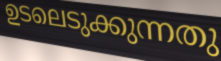
ഉടലെടുക്കുന്നതു